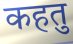
कहतु